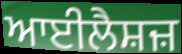
ਆਈਲੈਸ਼ਜ਼